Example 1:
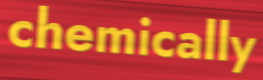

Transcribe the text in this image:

chemically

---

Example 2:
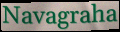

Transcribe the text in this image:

Navagraha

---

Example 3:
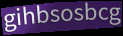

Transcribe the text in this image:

gihbsosbcg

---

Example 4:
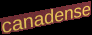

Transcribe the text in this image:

canadense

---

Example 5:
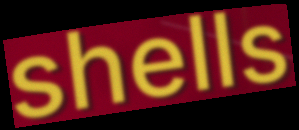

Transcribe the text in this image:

shells